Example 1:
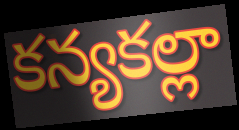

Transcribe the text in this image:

కన్యకల్లా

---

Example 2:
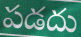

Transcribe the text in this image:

పడదు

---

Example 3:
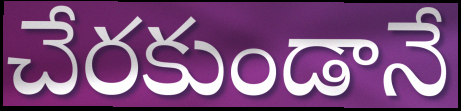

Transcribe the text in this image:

చేరకుండానే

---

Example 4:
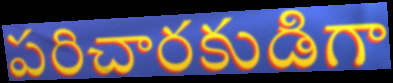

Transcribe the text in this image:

పరిచారకుడిగా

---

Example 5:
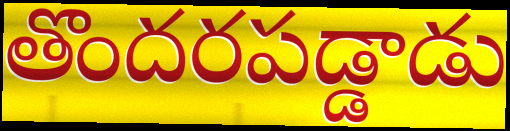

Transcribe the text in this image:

తొందరపడ్డాడు